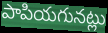
పాపియగునట్లు